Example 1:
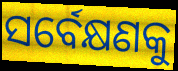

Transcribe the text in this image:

ସର୍ବେକ୍ଷଣକୁ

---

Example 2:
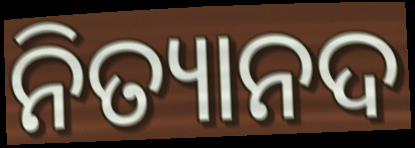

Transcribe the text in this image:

ନିତ୍ୟାନଦ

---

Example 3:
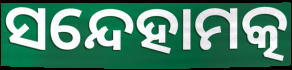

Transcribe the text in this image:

ସନ୍ଦେହାମତ୍କ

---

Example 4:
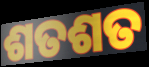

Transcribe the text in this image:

ଶତଶତ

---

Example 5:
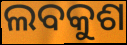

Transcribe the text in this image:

ଲବକୁଶ